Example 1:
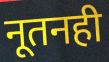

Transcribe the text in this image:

नूतनही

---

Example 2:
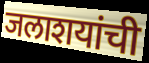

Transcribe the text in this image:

जलाशयांची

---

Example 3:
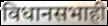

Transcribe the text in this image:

विधानसभाही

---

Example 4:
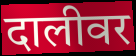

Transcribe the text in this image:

दालीवर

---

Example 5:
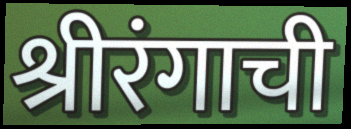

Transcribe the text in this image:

श्रीरंगाची